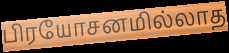
பிரயோசனமில்லாத